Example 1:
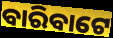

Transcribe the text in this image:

ବାରିବାଟେ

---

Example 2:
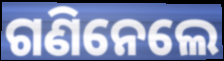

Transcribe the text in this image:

ଗଣିନେଲେ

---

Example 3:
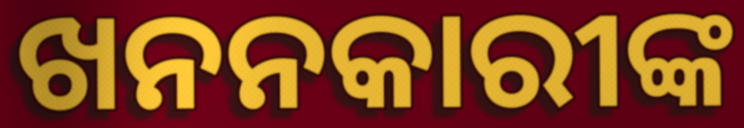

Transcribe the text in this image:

ଖନନକାରୀଙ୍କ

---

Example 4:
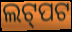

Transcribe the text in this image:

ଲଟ୍‌ପଟ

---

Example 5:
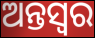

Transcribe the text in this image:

ଅନ୍ତସ୍ୱର